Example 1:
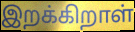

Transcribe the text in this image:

இறக்கிறாள்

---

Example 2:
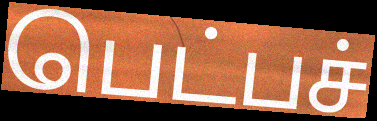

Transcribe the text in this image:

பெட்பச்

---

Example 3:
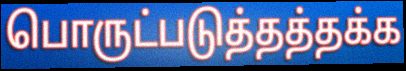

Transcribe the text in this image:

பொருட்படுத்தத்தக்க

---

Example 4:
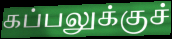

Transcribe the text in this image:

கப்பலுக்குச்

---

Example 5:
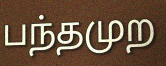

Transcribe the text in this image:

பந்தமுற